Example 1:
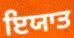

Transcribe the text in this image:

ਇਯਾਤ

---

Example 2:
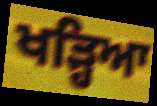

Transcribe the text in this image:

ਖੜ੍ਹਿਆ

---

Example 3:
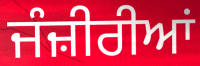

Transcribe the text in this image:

ਜੰਜ਼ੀਰੀਆਂ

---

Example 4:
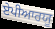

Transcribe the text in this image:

ਏਪੀਆਰਯੂ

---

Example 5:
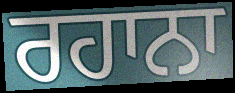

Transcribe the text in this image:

ਰਹਾਨਾ